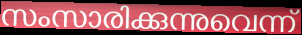
സംസാരിക്കുന്നുവെന്ന്